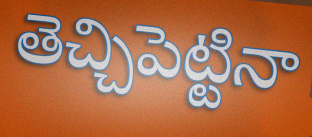
తెచ్చిపెట్టినా